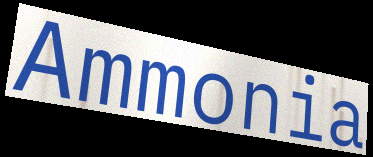
Ammonia